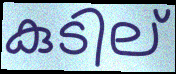
കുടില്